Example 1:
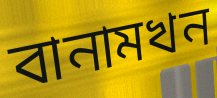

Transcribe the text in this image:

বানামখন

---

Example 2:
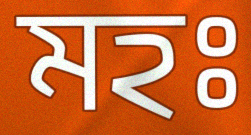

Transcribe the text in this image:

মহঃ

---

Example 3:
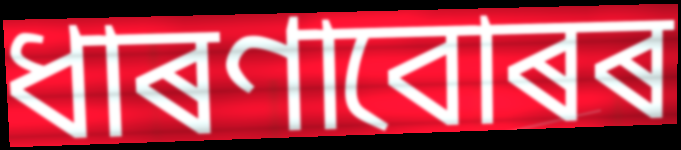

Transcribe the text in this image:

ধাৰণাবোৰৰ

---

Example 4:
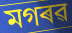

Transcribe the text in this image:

মগৰৱ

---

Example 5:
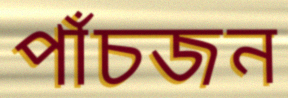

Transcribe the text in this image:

পাঁচজন